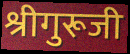
श्रीगुरूजी